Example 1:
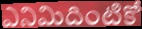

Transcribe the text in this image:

ఎనిమిదింటికో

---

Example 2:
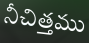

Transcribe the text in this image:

నీచిత్తము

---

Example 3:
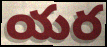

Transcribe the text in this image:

యర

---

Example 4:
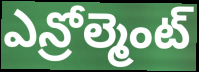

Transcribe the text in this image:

ఎన్రోల్మెంట్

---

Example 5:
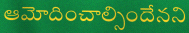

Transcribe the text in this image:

ఆమోదించాల్సిందేనని